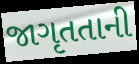
જાગૃતતાની